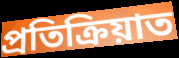
প্ৰতিক্ৰিয়াত